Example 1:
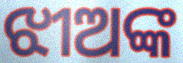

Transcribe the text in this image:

ଝୀଅଙ୍କ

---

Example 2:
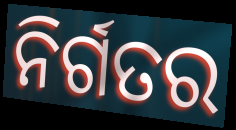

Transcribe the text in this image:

ନିର୍ଗତର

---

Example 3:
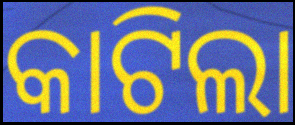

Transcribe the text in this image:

କାଟିଲା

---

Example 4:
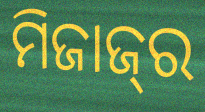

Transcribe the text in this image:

ମିଜାଜ୍‌ର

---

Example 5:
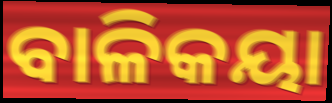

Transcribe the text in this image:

ବାଳିକୟା